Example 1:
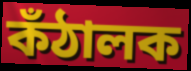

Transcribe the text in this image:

কঁঠালক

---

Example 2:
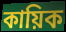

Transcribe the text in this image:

কায়িক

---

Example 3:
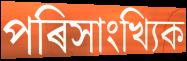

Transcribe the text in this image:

পৰিসাংখ্যিক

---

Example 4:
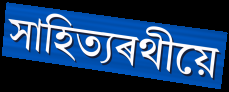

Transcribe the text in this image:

সাহিত্যৰথীয়ে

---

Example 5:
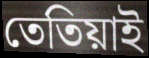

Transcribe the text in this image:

তেতিয়াই